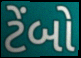
ટેંબો